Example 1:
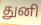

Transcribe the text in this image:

துனி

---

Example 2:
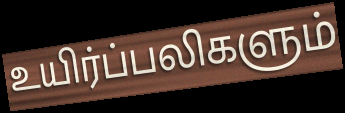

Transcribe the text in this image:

உயிர்ப்பலிகளும்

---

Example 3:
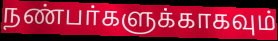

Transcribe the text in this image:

நண்பர்களுக்காகவும்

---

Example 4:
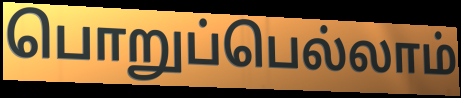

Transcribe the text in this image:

பொறுப்பெல்லாம்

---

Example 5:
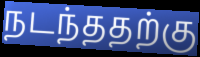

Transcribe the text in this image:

நடந்ததற்கு